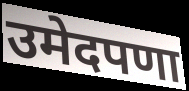
उमेदपणा